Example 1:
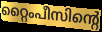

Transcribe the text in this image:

റ്റൈംപീസിന്റെ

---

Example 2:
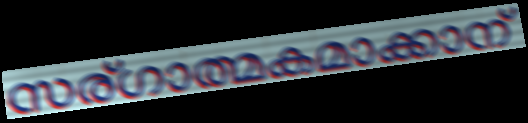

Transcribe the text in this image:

സര്ഗാത്മകമാക്കാന്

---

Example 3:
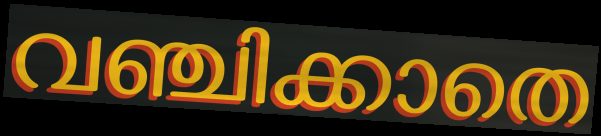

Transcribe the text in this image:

വഞ്ചിക്കാതെ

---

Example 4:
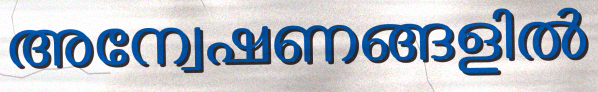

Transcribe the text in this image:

അന്വേഷണങ്ങളിൽ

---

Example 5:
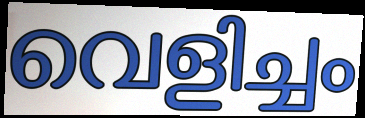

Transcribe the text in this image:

വെളിച്ചം